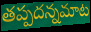
తప్పదన్నమాట